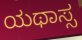
ಯಥಾಸ್ಸ